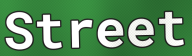
Street